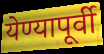
येण्यापूर्वी